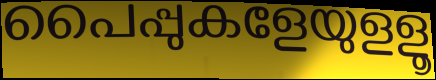
പൈപ്പുകളേയുളളൂ